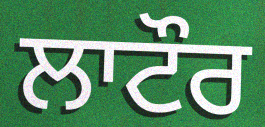
ਲਾਟੌਰ